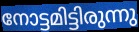
നോട്ടമിട്ടിരുന്നു